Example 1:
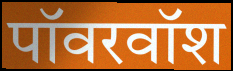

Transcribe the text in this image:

पॉवरवॉश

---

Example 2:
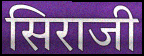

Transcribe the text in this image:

सिराजी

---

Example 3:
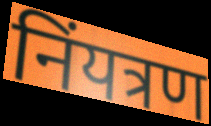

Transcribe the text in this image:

निंयत्रण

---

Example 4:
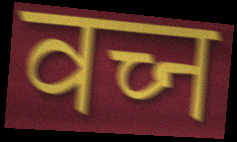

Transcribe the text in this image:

वच्न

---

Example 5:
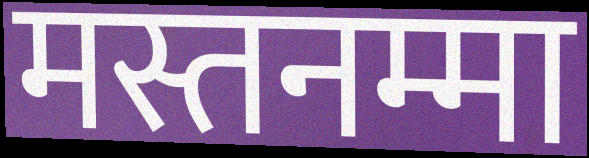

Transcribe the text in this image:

मस्तनम्मा